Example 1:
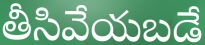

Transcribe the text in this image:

తీసివేయబడే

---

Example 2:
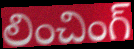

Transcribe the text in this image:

లించింగ్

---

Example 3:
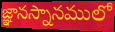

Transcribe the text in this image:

జ్ఞానస్నానములో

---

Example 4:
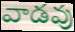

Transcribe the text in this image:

వాడవు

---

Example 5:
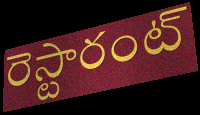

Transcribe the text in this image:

రెస్టారంట్